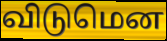
விடுமென